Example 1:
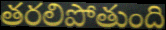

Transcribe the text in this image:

తరలిపోతుంది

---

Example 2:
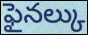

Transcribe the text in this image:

ఫైనల్కు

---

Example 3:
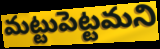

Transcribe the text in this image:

మట్టుపెట్టమని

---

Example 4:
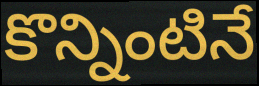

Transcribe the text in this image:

కొన్నింటినే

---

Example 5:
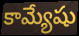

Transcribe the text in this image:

కామ్యేషు